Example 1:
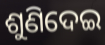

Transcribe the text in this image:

ଶୁଣିଦେଇ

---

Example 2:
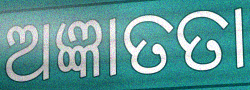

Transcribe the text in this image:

ଅଜ୍ଞାତତା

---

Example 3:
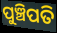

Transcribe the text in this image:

ପୁଞ୍ଚିପତି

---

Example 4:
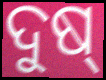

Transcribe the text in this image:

ଦୁଷ୍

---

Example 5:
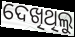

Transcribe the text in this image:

ଦେଖିଥିଲୁ